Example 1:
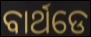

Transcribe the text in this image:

ବାର୍ଥଡେ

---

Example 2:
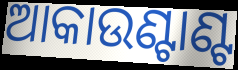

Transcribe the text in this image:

ଆକାଉଣ୍ଟାଣ୍ଟ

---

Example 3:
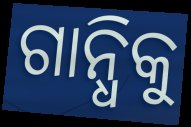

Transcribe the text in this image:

ଗାନ୍ଧିକୁ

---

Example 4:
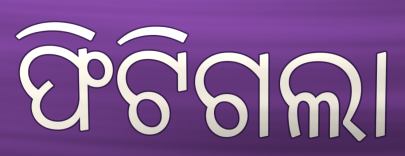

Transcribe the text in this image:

ଫିଟିଗଲା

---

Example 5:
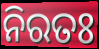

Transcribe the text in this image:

ନିରତଃ